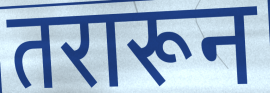
तरारून